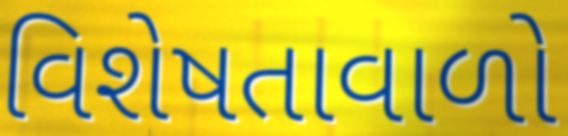
વિશેષતાવાળો